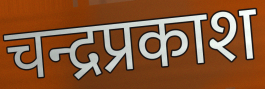
चन्द्रप्रकाश